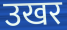
उखर